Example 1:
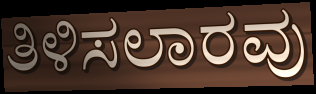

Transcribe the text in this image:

ತಿಳಿಸಲಾರವು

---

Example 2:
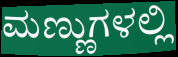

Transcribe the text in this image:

ಮಣ್ಣುಗಳಲ್ಲಿ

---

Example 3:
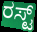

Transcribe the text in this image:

ರಸ್ಟ್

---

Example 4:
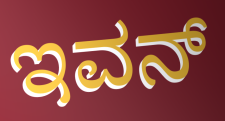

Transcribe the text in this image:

ಇವನ್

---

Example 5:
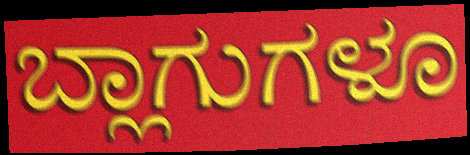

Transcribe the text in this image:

ಬ್ಲಾಗುಗಳೂ